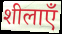
शीलाएँ